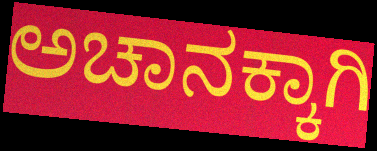
ಅಚಾನಕ್ಕಾಗಿ